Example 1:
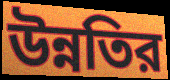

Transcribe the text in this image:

উন্নতির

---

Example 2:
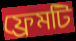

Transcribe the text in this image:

ফ্রেমটি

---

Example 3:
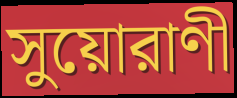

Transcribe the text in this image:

সুয়োরাণী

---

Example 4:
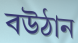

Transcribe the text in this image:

বউঠান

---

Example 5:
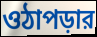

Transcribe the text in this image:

ওঠাপড়ার